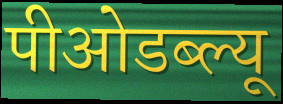
पीओडब्ल्यू